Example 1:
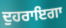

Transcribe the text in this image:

ਦੁਹਰਾਇਗਾ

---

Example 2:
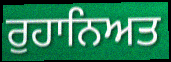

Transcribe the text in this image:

ਰੁਹਾਨਿਅਤ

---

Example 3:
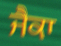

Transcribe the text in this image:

ਜੈਕਾ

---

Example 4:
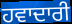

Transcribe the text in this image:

ਹਵਾਦਾਰੀ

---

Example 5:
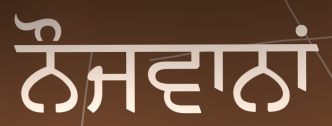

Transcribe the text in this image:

ਨੌਜਵਾਨਾਂ